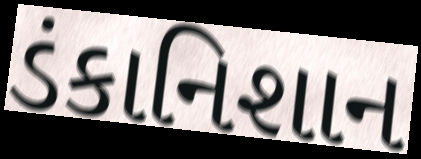
ડંકાનિશાન